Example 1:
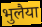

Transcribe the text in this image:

भुलैया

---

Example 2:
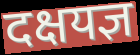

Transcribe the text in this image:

दक्षयज्ञ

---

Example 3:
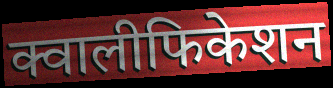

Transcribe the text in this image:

क्वालीफिकेशन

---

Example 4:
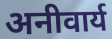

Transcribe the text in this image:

अनीवार्य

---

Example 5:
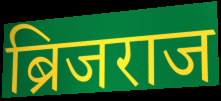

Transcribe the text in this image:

ब्रिजराज